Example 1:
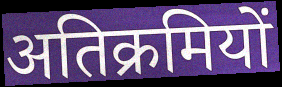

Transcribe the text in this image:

अतिक्रमियों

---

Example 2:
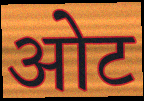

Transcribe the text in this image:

ओट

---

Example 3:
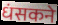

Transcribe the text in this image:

धंसकने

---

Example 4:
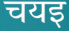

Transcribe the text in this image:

चयइ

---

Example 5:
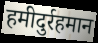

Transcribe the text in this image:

हमीदुर्रहमान